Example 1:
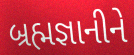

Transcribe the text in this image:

બ્રહ્મજ્ઞાનીને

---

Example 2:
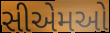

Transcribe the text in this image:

સીએમઓ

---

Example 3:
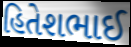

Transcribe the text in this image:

હિતેશભાઈ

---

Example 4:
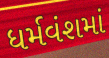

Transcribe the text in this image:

ધર્મવંશમાં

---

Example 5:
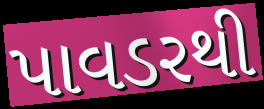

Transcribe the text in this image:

પાવડરથી